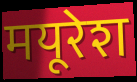
मयूरेश